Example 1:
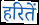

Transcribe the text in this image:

हरितें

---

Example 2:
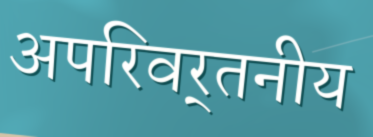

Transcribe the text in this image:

अपरिवर्तनीय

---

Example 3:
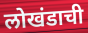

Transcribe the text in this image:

लोखंडाची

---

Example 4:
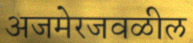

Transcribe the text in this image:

अजमेरजवळील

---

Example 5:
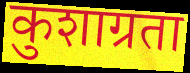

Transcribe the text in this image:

कुशाग्रता